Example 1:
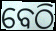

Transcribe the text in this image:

ବେଠି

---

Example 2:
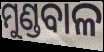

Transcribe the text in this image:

ମୁଣ୍ଡବାଳ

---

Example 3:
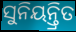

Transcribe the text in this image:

ସୁନିୟନ୍ତ୍ରିତ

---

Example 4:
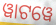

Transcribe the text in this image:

ୱାଟୱେ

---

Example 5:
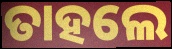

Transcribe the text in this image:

ତାହଲେ